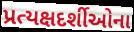
પ્રત્યક્ષદર્શીઓના